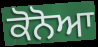
ਕੋਨੋਆ